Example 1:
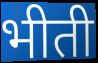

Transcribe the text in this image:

भीती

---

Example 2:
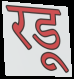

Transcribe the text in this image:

रडू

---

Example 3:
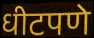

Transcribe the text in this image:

धीटपणे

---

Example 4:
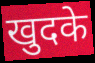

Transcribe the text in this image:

खुदके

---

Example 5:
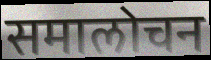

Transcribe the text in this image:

समालोचन